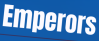
Emperors